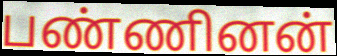
பண்ணினன்